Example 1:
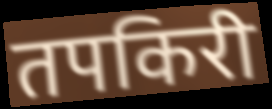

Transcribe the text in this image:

तपकिरी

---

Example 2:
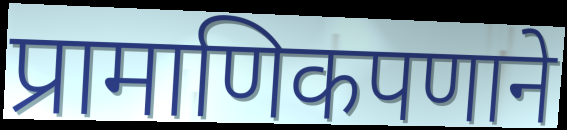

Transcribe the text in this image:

प्रामाणिकपणाने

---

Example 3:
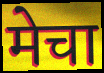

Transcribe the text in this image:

मेचा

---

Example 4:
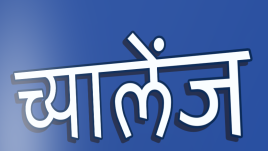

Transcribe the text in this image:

च्यालेंज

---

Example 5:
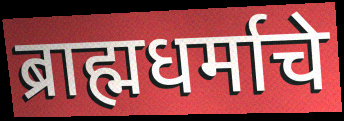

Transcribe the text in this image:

ब्राह्मधर्माचे